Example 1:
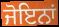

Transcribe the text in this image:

ਜੋਇਨਾਂ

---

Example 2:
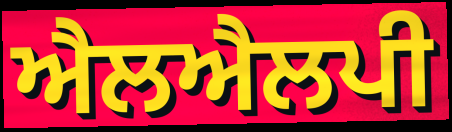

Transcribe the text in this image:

ਐਲਐਲਪੀ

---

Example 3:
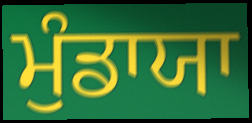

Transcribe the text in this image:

ਮੁੰਡਾਯਾ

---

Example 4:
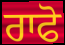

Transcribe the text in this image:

ਰਾਫੋ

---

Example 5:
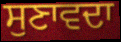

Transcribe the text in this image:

ਸੁਣਾਵਦਾ